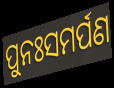
ପୁନଃସମର୍ପଣ